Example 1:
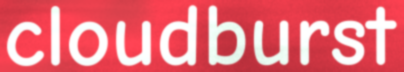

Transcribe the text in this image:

cloudburst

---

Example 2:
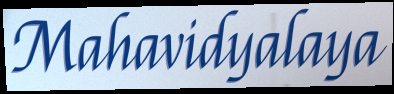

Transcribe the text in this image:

Mahavidyalaya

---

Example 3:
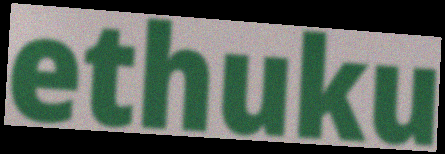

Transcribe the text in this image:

ethuku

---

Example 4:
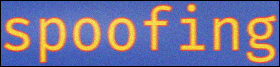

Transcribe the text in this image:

spoofing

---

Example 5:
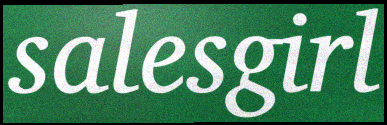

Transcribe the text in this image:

salesgirl